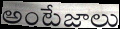
అంటేజాలు